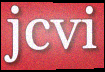
jcvi